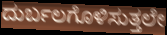
ದುರ್ಬಲಗೊಳಿಸುತ್ತಲೇ